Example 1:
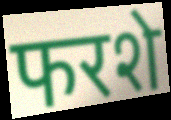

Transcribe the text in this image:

फरशे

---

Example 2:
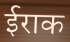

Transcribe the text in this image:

ईराक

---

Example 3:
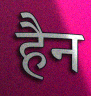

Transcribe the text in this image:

हैन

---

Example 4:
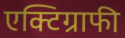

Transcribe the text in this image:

एक्टिग्राफी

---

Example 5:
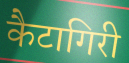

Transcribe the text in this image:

कैटागिरी